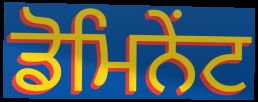
ਡੋਮਿਨੇਂਟ